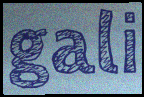
gali